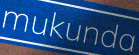
mukunda